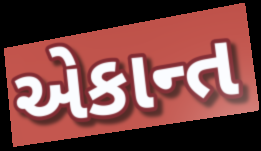
એકાન્ત